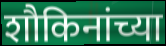
शौकिनांच्या